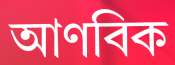
আণবিক